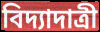
বিদ্যাদাত্রী